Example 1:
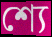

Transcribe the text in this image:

শ্যে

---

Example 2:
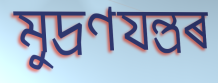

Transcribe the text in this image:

মুদ্ৰণযন্ত্ৰৰ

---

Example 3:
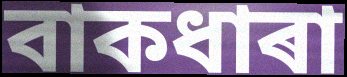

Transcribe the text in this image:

বাকধাৰা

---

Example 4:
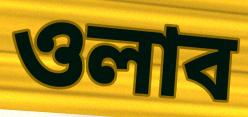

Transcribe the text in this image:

ওলাব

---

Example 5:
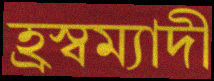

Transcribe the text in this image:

হ্ৰস্বম্যাদী